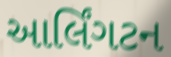
આર્લિંગટન